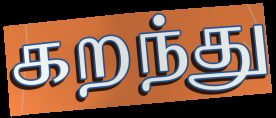
கறந்து